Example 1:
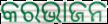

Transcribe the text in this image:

କରଭାଜନ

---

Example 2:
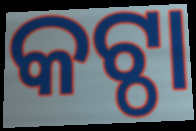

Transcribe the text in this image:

କଟ୍ଠା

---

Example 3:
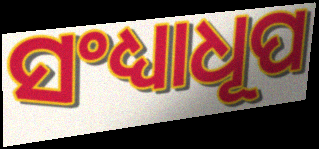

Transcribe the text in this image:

ସଂଧ୍ୟାଧୂପ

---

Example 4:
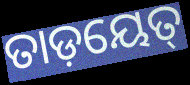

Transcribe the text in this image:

ତାଡ଼ୟେତ୍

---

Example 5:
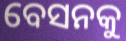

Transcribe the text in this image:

ବେସନକୁ